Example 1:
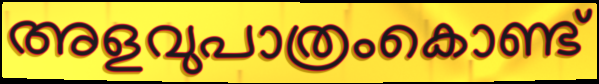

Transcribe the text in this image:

അളവുപാത്രംകൊണ്ട്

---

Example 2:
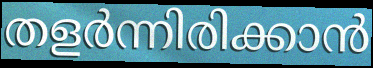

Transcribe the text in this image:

തളർന്നിരിക്കാൻ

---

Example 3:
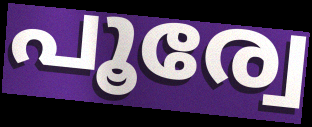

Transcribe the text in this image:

പൂര്വേ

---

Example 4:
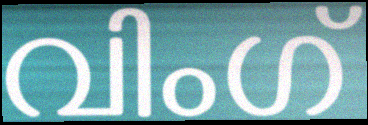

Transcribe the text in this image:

വിംഗ്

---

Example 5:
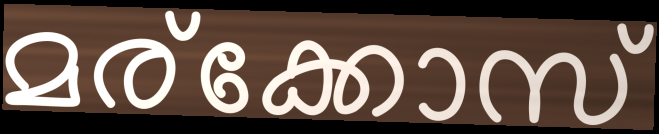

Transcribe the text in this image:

മര്ക്കോസ്